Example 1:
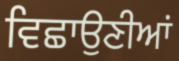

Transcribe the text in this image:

ਵਿਛਾਉਣੀਆਂ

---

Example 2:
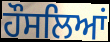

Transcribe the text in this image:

ਹੌਸਲਿਆਂ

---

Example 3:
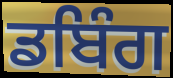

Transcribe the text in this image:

ਡਬਿੰਗ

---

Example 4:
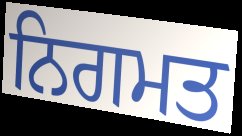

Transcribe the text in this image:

ਨਿਗਮਤ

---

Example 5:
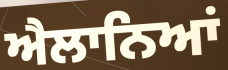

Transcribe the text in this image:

ਐਲਾਨਿਆਂ